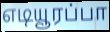
எடியூரப்பா